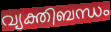
വ്യക്തിബന്ധം